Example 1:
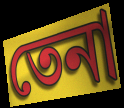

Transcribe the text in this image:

তেনা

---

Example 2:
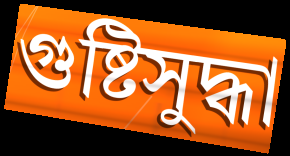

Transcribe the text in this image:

গুষ্টিসুদ্ধা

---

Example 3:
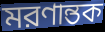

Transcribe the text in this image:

মরণান্তক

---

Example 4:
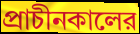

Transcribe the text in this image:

প্রাচীনকালের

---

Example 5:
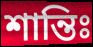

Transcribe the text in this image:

শান্তিঃ